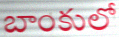
బాంకులో